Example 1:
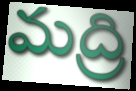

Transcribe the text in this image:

మద్రి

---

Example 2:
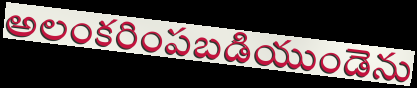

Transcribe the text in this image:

అలంకరింపబడియుండెను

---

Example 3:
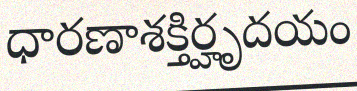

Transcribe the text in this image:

ధారణాశక్తిర్హృదయం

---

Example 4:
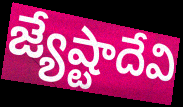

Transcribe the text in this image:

జ్యేష్టాదేవి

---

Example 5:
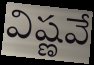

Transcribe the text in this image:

విష్ణవే